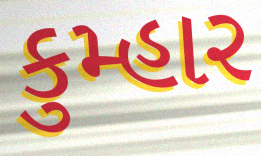
કુમ્હાર